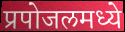
प्रपोजलमध्ये